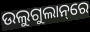
ଉଲୁଗୁଲାନ୍‌ରେ